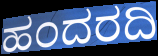
ಹಂದರದಿ